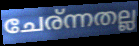
ചേര്ന്നതല്ല